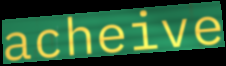
acheive